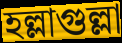
হল্লাগুল্লা